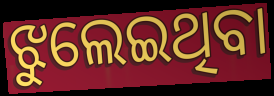
ଝୁଲେଇଥିବା